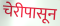
चेरीपासून